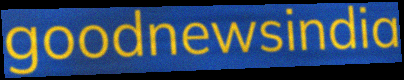
goodnewsindia